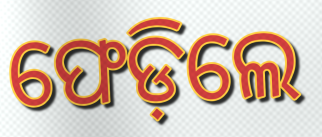
ଫେଡ଼ିଲେ